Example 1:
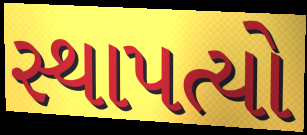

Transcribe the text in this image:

સ્થાપત્યો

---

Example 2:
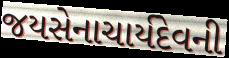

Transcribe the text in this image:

જયસેનાચાર્યદેવની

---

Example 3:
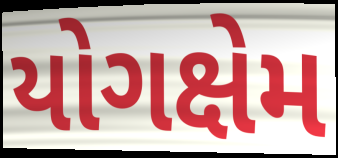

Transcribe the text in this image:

યોગક્ષેમ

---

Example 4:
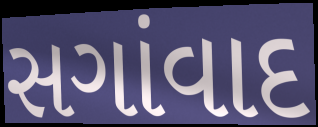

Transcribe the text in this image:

સગાંવાદ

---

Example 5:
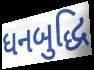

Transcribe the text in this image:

ધનબુદ્ધિ